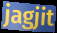
jagjit